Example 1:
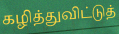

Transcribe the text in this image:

கழித்துவிட்டுத்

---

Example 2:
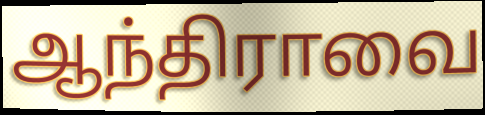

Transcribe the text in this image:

ஆந்திராவை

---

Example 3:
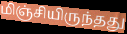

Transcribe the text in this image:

மிஞ்சியிருந்தது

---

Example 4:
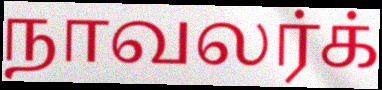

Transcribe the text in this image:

நாவலர்க்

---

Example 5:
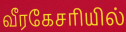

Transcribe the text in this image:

வீரகேசரியில்